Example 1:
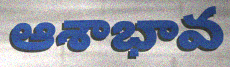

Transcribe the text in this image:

ఆశాభావ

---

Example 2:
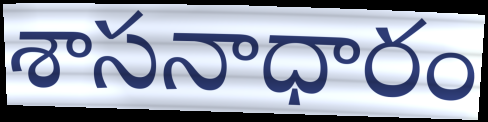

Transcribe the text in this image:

శాసనాధారం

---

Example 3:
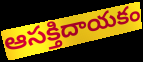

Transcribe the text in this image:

ఆసక్తిదాయకం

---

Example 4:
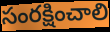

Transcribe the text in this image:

సంరక్షించాలి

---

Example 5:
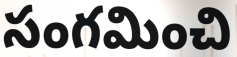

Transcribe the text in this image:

సంగమించి